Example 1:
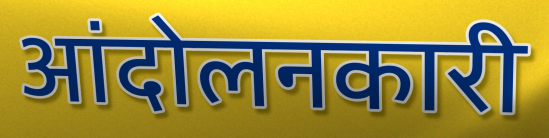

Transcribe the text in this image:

आंदोलनकारी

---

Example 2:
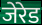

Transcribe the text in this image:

जेरेड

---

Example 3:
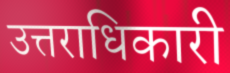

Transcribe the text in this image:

उत्तराधिकारी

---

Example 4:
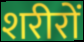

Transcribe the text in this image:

शरीरों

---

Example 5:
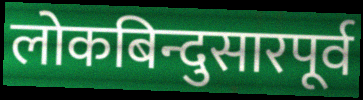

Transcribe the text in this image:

लोकबिन्दुसारपूर्व